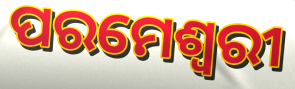
ପରମେଶ୍ୱରୀ